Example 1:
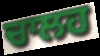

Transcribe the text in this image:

ਚਾਲਹ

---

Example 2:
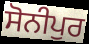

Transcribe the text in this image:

ਸੋਨੀਪੁਰ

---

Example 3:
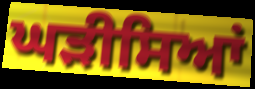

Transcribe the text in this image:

ਘੜੀਸਿਆਂ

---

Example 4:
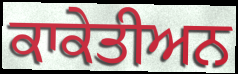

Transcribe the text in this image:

ਕਾਕੇਤੀਅਨ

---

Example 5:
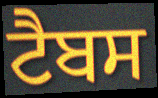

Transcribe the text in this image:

ਟੈਬਸ